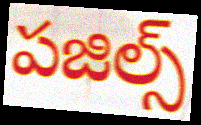
పజిల్స్